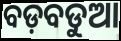
ବଡ଼ବଡୁଆ